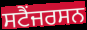
ਸਟੈਂਜਰਸਨ